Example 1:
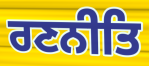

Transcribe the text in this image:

ਰਣਨੀਤਿ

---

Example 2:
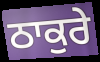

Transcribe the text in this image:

ਠਾਕੁਰੇ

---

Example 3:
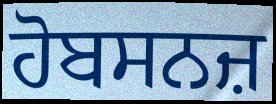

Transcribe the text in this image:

ਹੋਬਸਨਜ਼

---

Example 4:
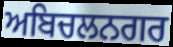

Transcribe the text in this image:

ਅਬਿਚਲਨਗਰ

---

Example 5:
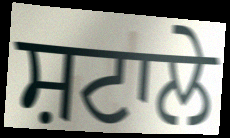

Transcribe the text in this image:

ਸ਼ਟਾਲੇ